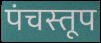
पंचस्तूप